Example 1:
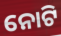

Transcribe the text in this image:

ନୋଟି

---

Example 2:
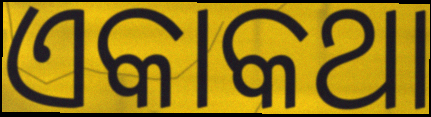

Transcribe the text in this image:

ଏକାକଥା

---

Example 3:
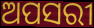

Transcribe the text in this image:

ଅପସରୀ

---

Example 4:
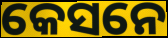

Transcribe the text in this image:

କେସନେ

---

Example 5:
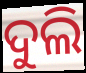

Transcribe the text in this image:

ଦୁଲି